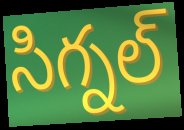
సిగ్నల్